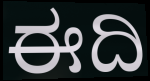
ಈದಿ